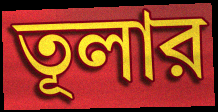
তূলার